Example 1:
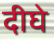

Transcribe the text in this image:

दीघे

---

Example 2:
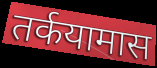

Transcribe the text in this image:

तर्कयामास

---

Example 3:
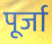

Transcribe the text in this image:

पूर्जा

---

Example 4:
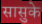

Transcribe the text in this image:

सासुके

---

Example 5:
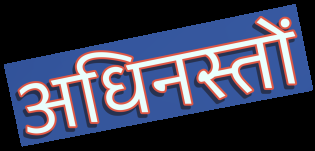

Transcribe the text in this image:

अधिनस्तों